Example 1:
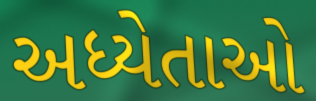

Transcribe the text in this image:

અધ્યેતાઓ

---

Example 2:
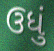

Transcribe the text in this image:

ઉધું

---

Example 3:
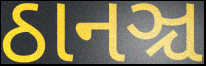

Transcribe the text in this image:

ઠાનઞ્ચ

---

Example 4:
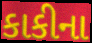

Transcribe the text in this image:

કાકીના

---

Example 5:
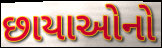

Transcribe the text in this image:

છાયાઓનો